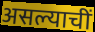
असल्याचीं